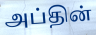
அப்தின்